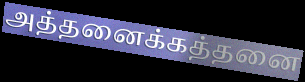
அத்தனைக்கத்தனை